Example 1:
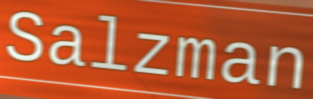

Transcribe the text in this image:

Salzman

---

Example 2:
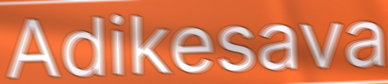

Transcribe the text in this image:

Adikesava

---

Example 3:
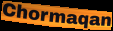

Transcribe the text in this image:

Chormaqan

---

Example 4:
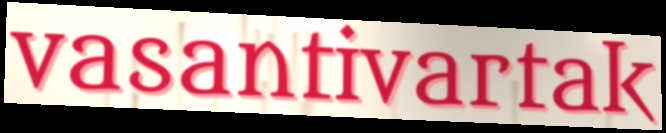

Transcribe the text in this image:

vasantivartak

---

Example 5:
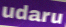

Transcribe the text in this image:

udaru